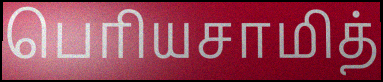
பெரியசாமித்